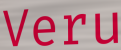
Veru